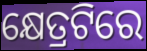
କ୍ଷେତ୍ରଟିରେ